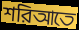
শরিআতে